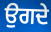
ਉਗਦੇ